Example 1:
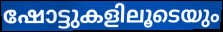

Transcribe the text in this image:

ഷോട്ടുകളിലൂടെയും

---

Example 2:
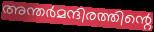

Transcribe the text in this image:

അന്തർമന്ദിരത്തിന്റെ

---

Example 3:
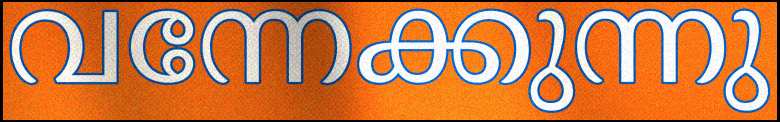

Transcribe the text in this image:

വന്നേക്കുന്നു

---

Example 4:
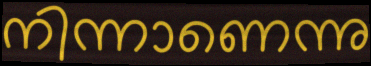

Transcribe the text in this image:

നിന്നാണെന്നു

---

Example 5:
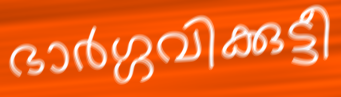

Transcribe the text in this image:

ഭാർഗ്ഗവിക്കുട്ടീ